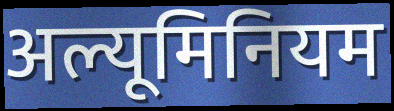
अल्यूमिनियम